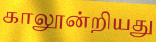
காலூன்றியது